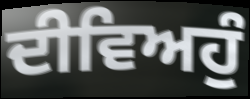
ਦੀਵਿਅਹੁੰ